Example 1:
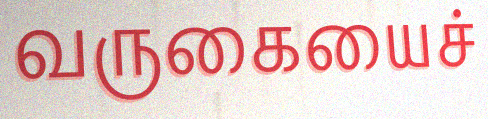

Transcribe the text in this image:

வருகையைச்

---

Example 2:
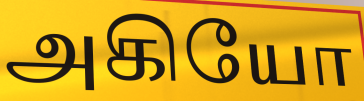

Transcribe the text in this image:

அகியோ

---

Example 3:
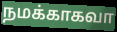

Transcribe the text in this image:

நமக்காகவா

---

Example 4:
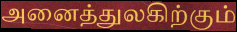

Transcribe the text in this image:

அனைத்துலகிற்கும்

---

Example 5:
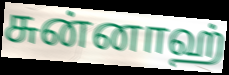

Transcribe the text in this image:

சுன்னாஹ்